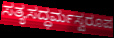
ಸತ್ಯಸದ್ಧರ್ಮಸ್ವರೂಪ